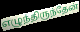
எழுந்திருந்தேன்